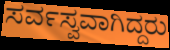
ಸರ್ವಸ್ವವಾಗಿದ್ದರು